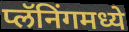
प्लॅनिंगमध्ये